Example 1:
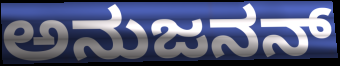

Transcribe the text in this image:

ಅನುಜನನ್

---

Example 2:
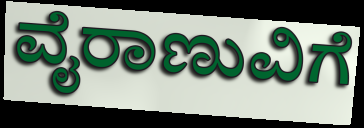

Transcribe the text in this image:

ವೈರಾಣುವಿಗೆ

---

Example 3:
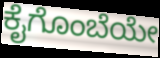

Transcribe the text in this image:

ಕೈಗೊಂಬೆಯೇ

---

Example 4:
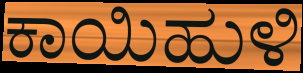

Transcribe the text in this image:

ಕಾಯಿಹುಳಿ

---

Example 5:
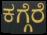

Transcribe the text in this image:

ಕಗ್ಗೆರೆ